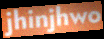
jhinjhwo